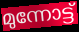
മുന്നോട്ട്